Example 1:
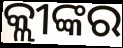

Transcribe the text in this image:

କ୍ଲୀଙ୍କର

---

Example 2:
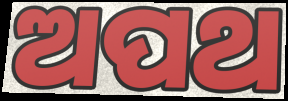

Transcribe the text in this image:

ଅପଥ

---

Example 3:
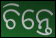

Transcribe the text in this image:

ଚିନ୍ତେ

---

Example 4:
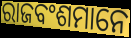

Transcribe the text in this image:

ରାଜବଂଶମାନେ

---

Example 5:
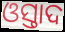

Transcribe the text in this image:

ଓସ୍ତାଦ